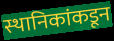
स्थानिकांकडून